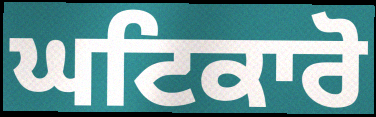
ਘਟਿਕਾਰੋ